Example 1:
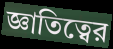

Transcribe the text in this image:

জ্ঞাতিত্বের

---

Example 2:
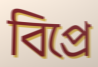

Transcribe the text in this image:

বিপ্রে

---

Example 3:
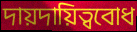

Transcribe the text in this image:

দায়দায়িত্ববোধ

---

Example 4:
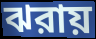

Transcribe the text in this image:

ঝরায়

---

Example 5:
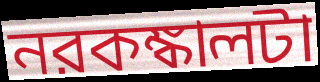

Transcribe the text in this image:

নরকঙ্কালটা